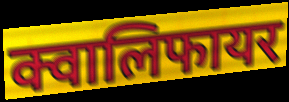
क्वालिफायर